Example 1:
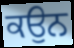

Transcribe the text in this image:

ਕਉਨ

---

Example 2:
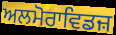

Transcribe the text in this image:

ਅਲਮੋਰਾਵਿਡਜ਼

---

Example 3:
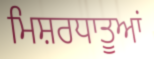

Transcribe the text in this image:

ਮਿਸ਼ਰਧਾਤੂਆਂ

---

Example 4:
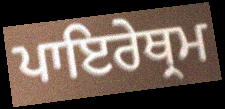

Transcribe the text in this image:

ਪਾਇਰੇਥ੍ਰਮ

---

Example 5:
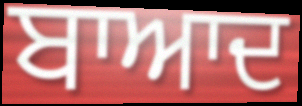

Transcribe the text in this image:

ਬਾਆਦ